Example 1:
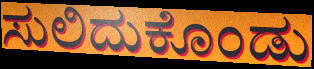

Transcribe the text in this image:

ಸುಲಿದುಕೊಂಡು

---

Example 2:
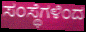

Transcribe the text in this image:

ಸಂಸ್ಥೆಗಳಿಂದ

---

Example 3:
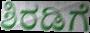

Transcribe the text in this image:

ಶಿರಡಿಗೆ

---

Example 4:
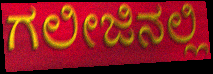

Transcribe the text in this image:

ಗಲೀಜಿನಲ್ಲಿ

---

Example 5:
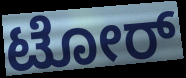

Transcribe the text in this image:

ಟೋರ್